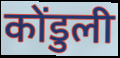
कोंडुली